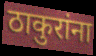
ठाकुरांना